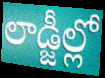
లాడ్జీల్లో